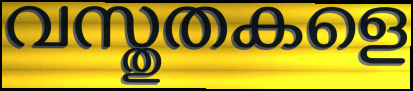
വസ്തുതകളെ